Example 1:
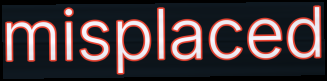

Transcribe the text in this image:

misplaced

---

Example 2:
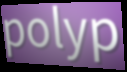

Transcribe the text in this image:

polyp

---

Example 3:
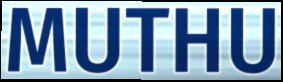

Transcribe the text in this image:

MUTHU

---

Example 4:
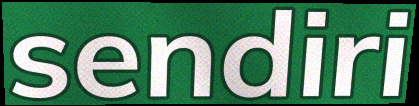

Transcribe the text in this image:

sendiri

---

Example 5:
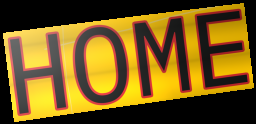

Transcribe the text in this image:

HOME